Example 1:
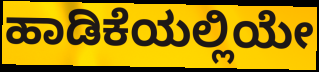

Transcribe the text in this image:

ಹಾಡಿಕೆಯಲ್ಲಿಯೇ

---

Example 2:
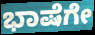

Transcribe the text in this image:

ಭಾಷೆಗೇ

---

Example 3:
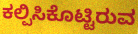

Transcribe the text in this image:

ಕಲ್ಪಿಸಿಕೊಟ್ಟಿರುವ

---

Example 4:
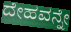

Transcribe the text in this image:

ದೇಹವನ್ನೇ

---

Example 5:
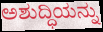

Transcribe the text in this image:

ಅಶುದ್ಧಿಯನ್ನು